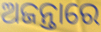
ଅଜନ୍ତାରେ